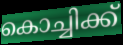
കൊച്ചിക്ക്